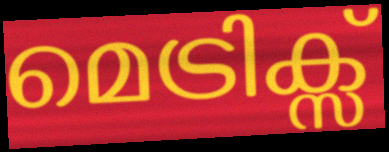
മെട്രിക്സ്